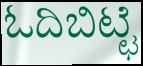
ಓದಿಬಿಟ್ಟೆ